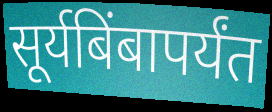
सूर्यबिंबापर्यंत